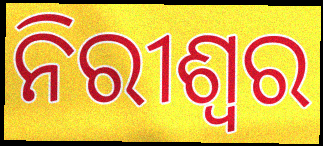
ନିରୀଶ୍ୱର